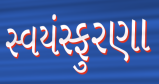
સ્વયંસ્ફુરણા